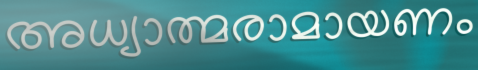
അധ്യാത്മരാമായണം